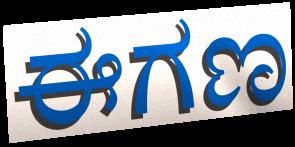
ಈಗಣ